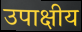
उपाक्षीय